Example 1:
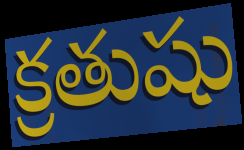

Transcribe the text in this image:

క్రతుషు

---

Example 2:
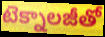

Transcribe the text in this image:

టెక్నాలజీతో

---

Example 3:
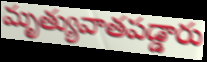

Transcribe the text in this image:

మృత్యువాతపడ్డారు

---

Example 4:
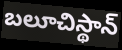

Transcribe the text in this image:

బలూచిస్థాన్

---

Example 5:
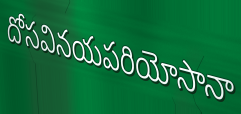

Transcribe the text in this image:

దోసవినయపరియోసానా